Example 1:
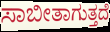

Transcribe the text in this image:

ಸಾಬೀತಾಗುತ್ತದೆ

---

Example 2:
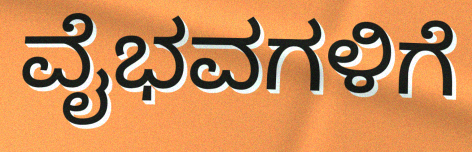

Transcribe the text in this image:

ವೈಭವಗಳಿಗೆ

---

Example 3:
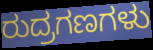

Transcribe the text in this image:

ರುದ್ರಗಣಗಳು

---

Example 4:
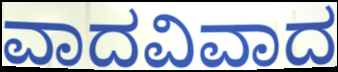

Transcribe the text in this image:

ವಾದವಿವಾದ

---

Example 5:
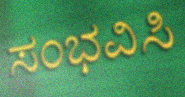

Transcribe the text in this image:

ಸಂಭವಿಸಿ